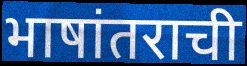
भाषांतराची